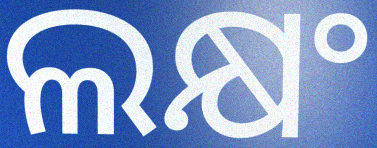
ଲକ୍ଷଂ